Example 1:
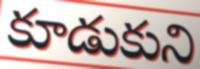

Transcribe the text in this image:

కూడుకుని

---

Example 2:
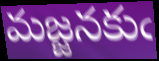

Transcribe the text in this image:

మజ్జనకుఁ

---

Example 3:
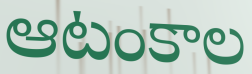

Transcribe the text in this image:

ఆటంకాల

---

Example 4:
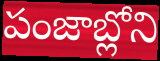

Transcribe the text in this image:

పంజాబ్లోని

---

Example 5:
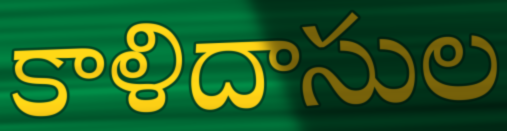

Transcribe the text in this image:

కాళిదాసుల